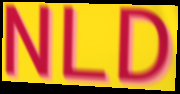
NLD